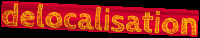
delocalisation